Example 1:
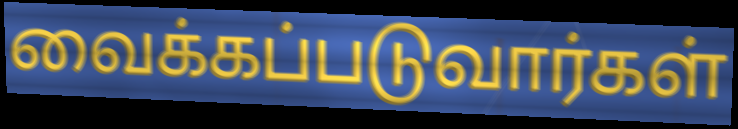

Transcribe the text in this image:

வைக்கப்படுவார்கள்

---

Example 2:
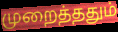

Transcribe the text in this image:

முறைத்ததும்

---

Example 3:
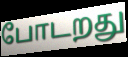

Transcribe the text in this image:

போடறது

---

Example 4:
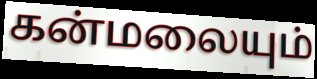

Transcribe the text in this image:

கன்மலையும்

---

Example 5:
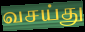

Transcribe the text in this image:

வசய்து